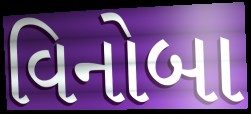
વિનોબા